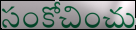
సంకోచించు